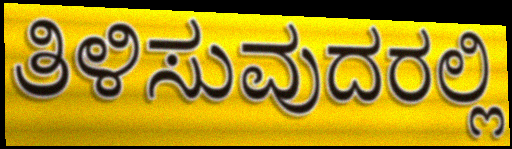
ತಿಳಿಸುವುದರಲ್ಲಿ